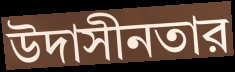
উদাসীনতার